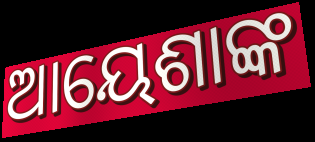
ଆୟେଶାଙ୍କ